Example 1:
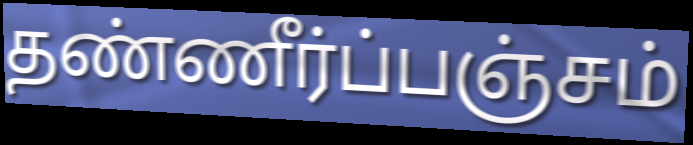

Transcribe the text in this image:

தண்ணீர்ப்பஞ்சம்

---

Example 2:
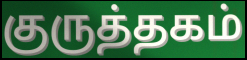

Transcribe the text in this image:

குருத்தகம்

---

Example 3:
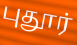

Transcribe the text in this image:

புதூர்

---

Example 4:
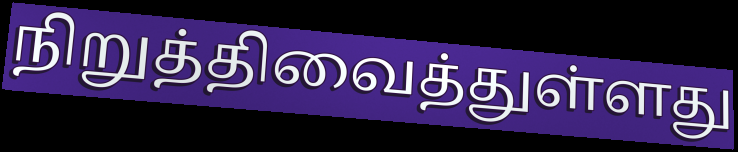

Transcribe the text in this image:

நிறுத்திவைத்துள்ளது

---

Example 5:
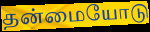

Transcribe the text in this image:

தன்மையோடு